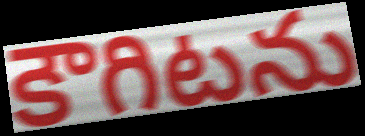
కౌగిటను